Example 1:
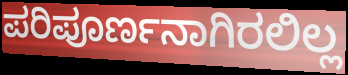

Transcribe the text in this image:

ಪರಿಪೂರ್ಣನಾಗಿರಲಿಲ್ಲ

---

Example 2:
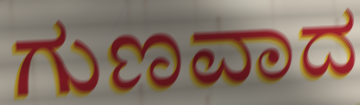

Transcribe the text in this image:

ಗುಣವಾದ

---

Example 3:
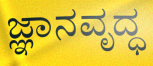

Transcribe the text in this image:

ಜ್ಞಾನವೃದ್ಧ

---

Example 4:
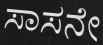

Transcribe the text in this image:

ಸಾಸನೇ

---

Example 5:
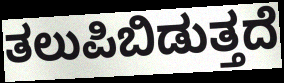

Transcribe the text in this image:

ತಲುಪಿಬಿಡುತ್ತದೆ